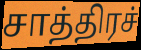
சாத்திரச்